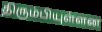
திரும்பியுள்ளன